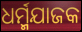
ଧର୍ମ୍ମଯାଜକ